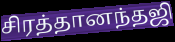
சிரத்தானந்தஜி